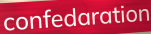
confedaration